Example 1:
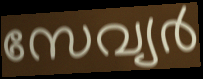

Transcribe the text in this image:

സേവ്യർ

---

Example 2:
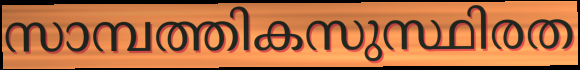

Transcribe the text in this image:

സാമ്പത്തികസുസ്ഥിരത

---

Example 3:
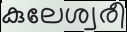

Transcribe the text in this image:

കുലേശ്വരീ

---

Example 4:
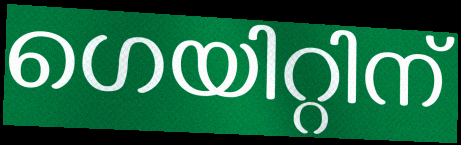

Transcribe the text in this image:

ഗെയിറ്റിന്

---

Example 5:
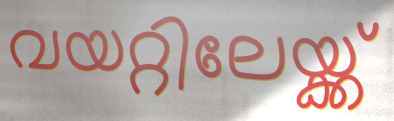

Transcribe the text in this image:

വയറ്റിലേയ്ക്ക്